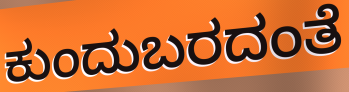
ಕುಂದುಬರದಂತೆ